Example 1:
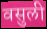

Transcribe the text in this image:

वसुली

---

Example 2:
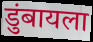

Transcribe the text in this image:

डुंबायला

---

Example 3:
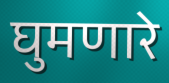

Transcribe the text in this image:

घुमणारे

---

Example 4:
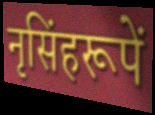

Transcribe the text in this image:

नृसिंहरूपें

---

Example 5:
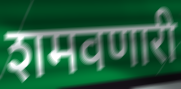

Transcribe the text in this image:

शमवणारी